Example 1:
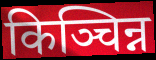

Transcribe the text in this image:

किञ्चिन्न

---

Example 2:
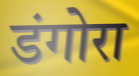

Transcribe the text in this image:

डंगोरा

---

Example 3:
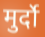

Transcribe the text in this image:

मुर्दो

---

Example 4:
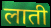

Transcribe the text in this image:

लाती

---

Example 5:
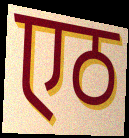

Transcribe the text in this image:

एठ